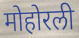
मोहोरली